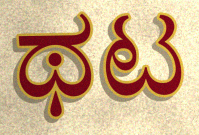
ಥಟ